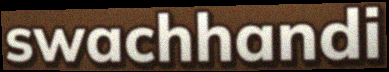
swachhandi